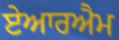
ਏਆਰਐਮ